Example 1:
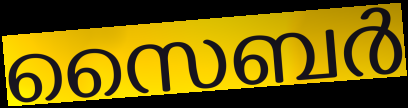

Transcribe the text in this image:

സൈബർ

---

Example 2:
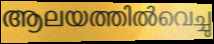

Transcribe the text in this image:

ആലയത്തിൽവെച്ചു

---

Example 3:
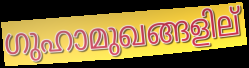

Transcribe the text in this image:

ഗുഹാമുഖങ്ങളില്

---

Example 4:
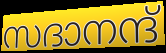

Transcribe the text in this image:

സദാനന്ദ്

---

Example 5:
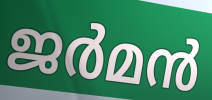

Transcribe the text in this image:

ജർമൻ